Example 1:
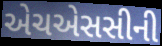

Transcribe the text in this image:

એચએસસીની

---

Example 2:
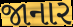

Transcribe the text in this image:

જાનાર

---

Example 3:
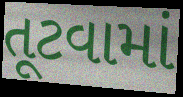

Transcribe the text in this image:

તૂટવામાં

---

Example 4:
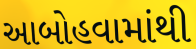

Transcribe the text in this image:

આબોહવામાંથી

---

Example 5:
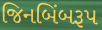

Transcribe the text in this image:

જિનબિંબરૂપ